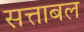
सत्ताबल